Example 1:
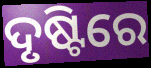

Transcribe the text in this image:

ଦୃଷ୍ଟିରେ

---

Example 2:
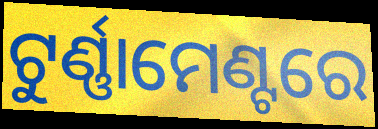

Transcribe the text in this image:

ଟୁର୍ଣ୍ଣାମେଣ୍ଟରେ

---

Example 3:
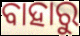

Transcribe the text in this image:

ବାହାରୁ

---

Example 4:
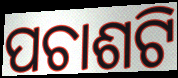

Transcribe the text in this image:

ପଚାଶଟି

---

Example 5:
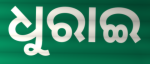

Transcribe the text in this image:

ଧୁରାଇ